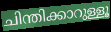
ചിന്തിക്കാറുള്ളൂ